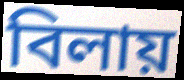
বিলায়